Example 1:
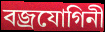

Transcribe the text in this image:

বজ্ৰযোগিনী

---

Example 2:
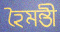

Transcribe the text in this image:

হৈমন্তী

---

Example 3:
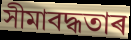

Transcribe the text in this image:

সীমাবদ্ধতাৰ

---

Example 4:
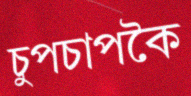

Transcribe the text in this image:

চুপচাপকৈ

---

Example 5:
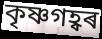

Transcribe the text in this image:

কৃষ্ণগহ্বৰ